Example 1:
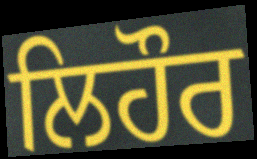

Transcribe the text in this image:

ਲਿਹੌਰ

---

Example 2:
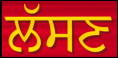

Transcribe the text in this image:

ਲੱਸਣ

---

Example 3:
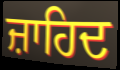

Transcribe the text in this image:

ਜ਼ਾਹਿਦ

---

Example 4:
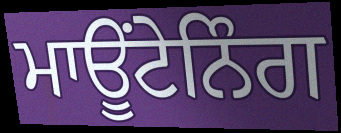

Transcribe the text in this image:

ਮਾਊਂਟੇਨਿੰਗ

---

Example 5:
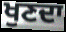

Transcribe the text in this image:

ਖੁਣਦਾ